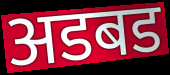
अडबड